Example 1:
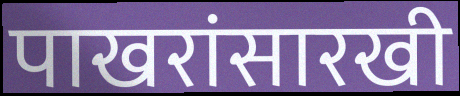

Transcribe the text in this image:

पाखरांसारखी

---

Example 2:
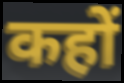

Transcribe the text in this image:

कहों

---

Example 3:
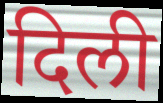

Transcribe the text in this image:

दिली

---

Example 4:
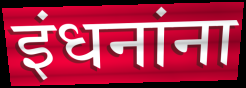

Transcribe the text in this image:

इंधनांना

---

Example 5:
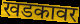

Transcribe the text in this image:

खडकावर